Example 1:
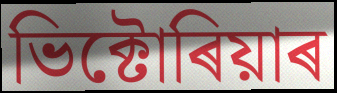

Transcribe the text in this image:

ভিক্টোৰিয়াৰ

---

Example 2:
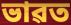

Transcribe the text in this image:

ভাৱত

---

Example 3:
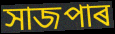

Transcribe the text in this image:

সাজপাৰ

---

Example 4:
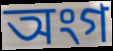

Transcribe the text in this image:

অংগ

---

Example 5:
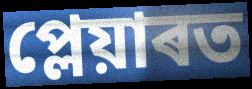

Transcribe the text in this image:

প্লেয়াৰত